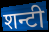
शन्टी